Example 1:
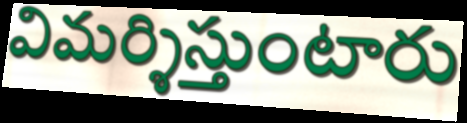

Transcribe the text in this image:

విమర్శిస్తుంటారు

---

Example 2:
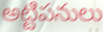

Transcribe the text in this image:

అట్టిపనులు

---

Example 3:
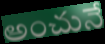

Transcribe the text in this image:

అంచునే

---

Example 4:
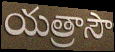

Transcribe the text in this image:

యత్రాసౌ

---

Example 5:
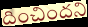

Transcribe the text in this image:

దించిందని